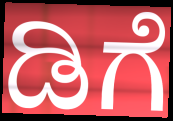
ಡಿಗೆ